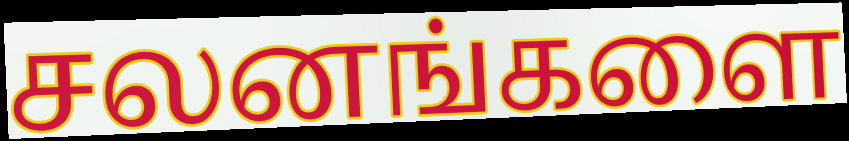
சலனங்களை